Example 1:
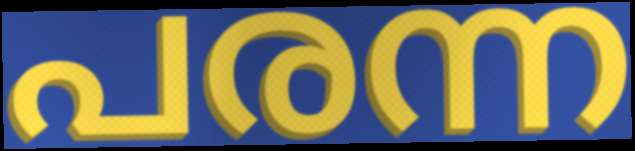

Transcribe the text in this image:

പരന്ന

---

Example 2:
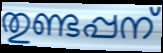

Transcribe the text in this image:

തുണ്ടപ്പന്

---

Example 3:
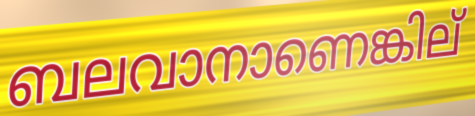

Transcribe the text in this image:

ബലവാനാണെങ്കില്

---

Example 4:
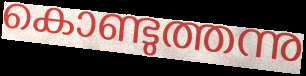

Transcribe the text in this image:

കൊണ്ടുത്തന്നു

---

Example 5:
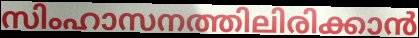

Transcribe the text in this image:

സിംഹാസനത്തിലിരിക്കാൻ